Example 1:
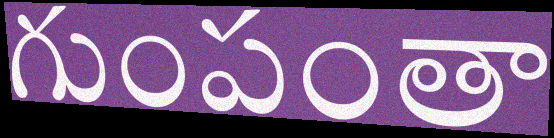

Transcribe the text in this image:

గుంపంతా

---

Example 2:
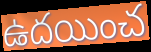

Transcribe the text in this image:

ఉదయించ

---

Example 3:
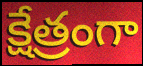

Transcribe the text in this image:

క్షేత్రంగా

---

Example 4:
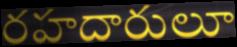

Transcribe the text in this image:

రహదారులూ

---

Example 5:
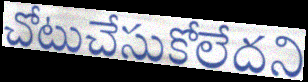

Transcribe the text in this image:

చోటుచేసుకోలేదని